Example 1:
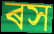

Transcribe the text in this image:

ৰস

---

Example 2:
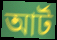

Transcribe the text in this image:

আৰ্ট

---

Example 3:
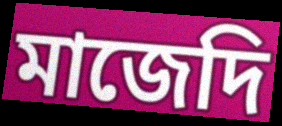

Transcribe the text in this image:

মাজেদি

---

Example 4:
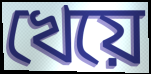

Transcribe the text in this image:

খেয়ে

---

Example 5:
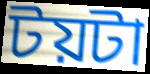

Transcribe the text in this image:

টয়টা